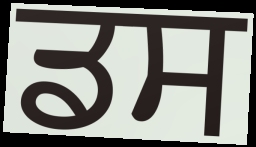
ਡਸ